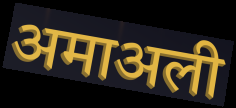
अमाअली